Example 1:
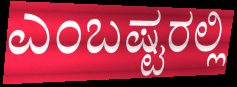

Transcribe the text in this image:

ಎಂಬಷ್ಟರಲ್ಲಿ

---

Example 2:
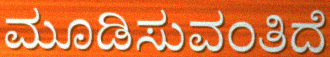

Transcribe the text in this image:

ಮೂಡಿಸುವಂತಿದೆ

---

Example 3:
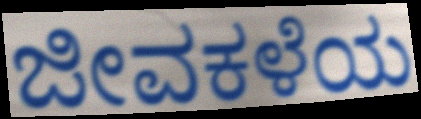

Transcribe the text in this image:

ಜೀವಕಳೆಯ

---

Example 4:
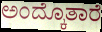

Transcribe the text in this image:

ಅಂದ್ಕೊತಾರೆ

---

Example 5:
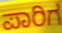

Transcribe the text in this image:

ಪಾರಿಗ